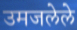
उमजलेले